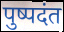
पुष्पदंत